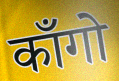
काँगो